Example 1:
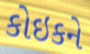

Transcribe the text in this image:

કોઇકને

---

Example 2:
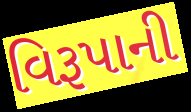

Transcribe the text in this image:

વિરૂપાની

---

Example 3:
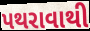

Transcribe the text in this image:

પથરાવાથી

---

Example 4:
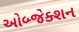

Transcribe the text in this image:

ઓબ્જેક્શન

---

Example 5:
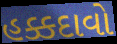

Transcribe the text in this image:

હક્કદાવો